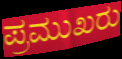
ಪ್ರಮುಖರು